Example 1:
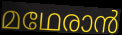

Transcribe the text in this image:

മഥേരാൻ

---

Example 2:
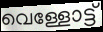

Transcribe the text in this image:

വെള്ളോട്ട്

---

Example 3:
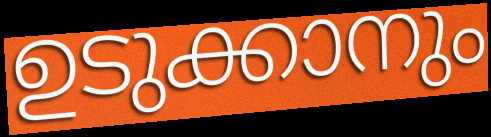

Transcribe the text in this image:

ഉടുക്കാനും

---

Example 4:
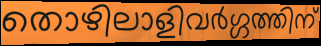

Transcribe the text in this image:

തൊഴിലാളിവർഗ്ഗത്തിന്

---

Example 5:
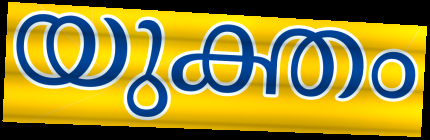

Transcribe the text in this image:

യുക്തം